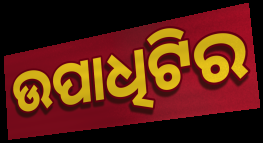
ଉପାଧିଟିର